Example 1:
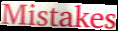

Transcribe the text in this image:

Mistakes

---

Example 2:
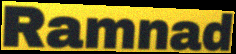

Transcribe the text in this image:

Ramnad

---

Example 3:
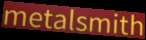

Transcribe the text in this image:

metalsmith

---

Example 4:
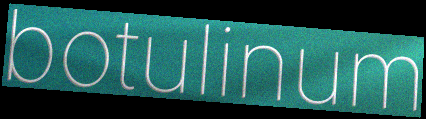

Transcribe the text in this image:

botulinum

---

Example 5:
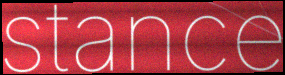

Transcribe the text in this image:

stance